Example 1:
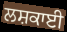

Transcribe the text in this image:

ਲਸ਼ਕਾਈ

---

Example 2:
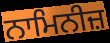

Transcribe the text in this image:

ਨਾਮਿਨੀਜ਼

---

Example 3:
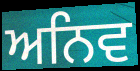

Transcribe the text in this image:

ਅਨਿਵ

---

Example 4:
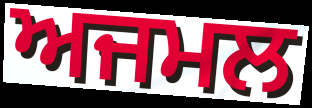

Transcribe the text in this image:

ਅਜਮਲ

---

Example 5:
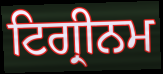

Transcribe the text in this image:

ਟਿਗ੍ਰੀਨਮ